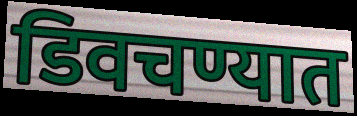
डिवचण्यात